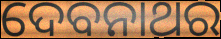
ଦେବନାଥର